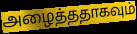
அழைத்ததாகவும்